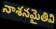
నాశనమైతివి